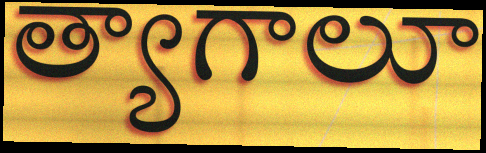
త్యాగాలూ